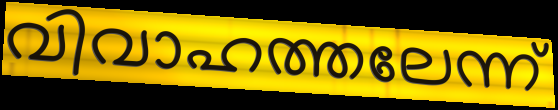
വിവാഹത്തലേന്ന്